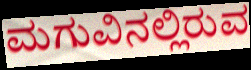
ಮಗುವಿನಲ್ಲಿರುವ